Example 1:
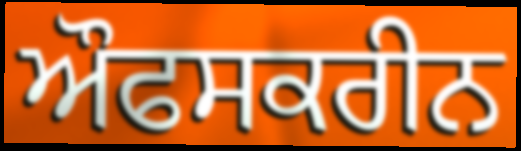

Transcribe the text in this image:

ਔਫਸਕਰੀਨ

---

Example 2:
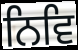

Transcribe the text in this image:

ਨਿਵਿ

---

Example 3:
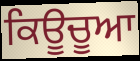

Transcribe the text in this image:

ਕਿਊਚੂਆ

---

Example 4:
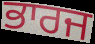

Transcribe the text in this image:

ਭਾਰਜ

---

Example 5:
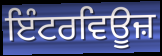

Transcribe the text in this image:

ਇੰਟਰਵਿਊਜ਼